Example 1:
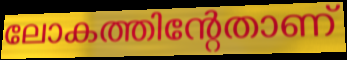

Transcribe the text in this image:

ലോകത്തിന്റേതാണ്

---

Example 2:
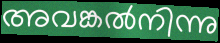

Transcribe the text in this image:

അവങ്കൽനിന്നു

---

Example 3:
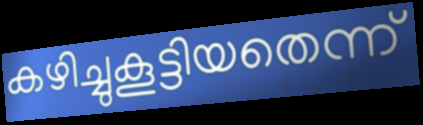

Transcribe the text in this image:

കഴിച്ചുകൂട്ടിയതെന്ന്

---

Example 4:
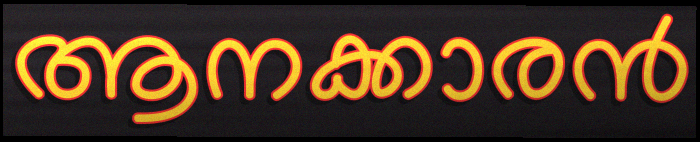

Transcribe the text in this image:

ആനക്കാരൻ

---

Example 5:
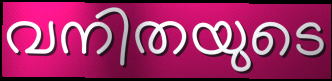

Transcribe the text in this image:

വനിതയുടെ